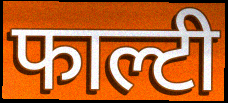
फाल्टी